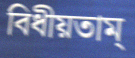
বিধীয়তাম্